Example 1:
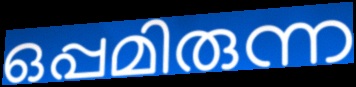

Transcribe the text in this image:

ഒപ്പമിരുന്ന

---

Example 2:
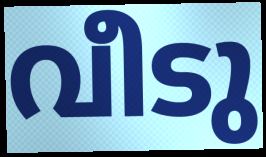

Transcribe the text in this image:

വീടു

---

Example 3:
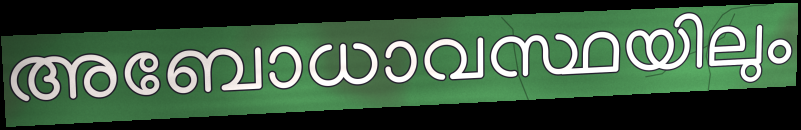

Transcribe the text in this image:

അബോധാവസ്ഥയിലും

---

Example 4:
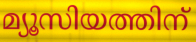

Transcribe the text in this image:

മ്യൂസിയത്തിന്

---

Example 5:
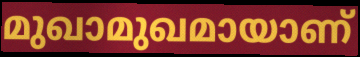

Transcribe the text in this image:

മുഖാമുഖമായാണ്